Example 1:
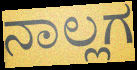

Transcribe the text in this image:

ನಾಲ್ಲಗ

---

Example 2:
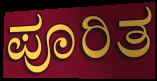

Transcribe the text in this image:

ಪೂರಿತ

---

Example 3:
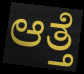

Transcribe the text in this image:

ಆತ್ತೆ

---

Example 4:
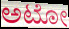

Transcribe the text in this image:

ಅಟೋ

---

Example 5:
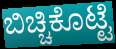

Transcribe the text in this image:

ಬಿಚ್ಚಿಕೊಟ್ಟೆ